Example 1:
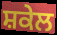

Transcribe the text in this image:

ਸ਼ਕੇਲ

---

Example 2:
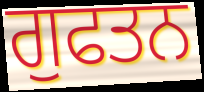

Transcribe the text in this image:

ਗੁਫਤਨ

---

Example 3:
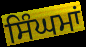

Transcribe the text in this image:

ਸਿੰਘਮਾਂ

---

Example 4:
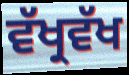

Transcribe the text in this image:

ਵੱਖ੍ਰਵੱਖ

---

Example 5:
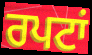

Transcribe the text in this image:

ਰਪਟਾਂ